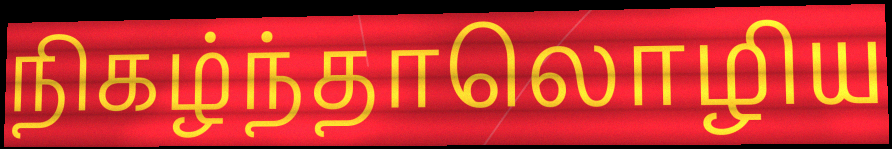
நிகழ்ந்தாலொழிய